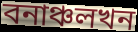
বনাঞ্চলখন